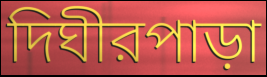
দিঘীরপাড়া